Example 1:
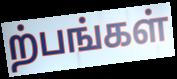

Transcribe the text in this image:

ற்பங்கள்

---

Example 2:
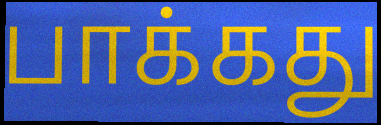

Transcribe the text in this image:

பாக்கது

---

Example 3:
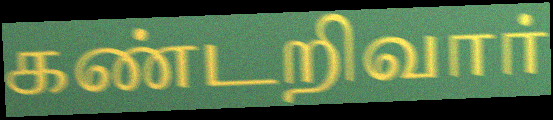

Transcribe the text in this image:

கண்டறிவார்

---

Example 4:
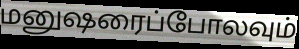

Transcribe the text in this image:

மனுஷரைப்போலவும்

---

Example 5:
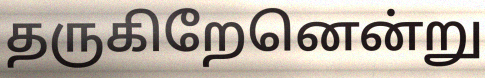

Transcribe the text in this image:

தருகிறேனென்று